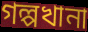
গল্পখানা